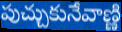
పుచ్చుకునేవాణ్ణి